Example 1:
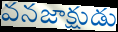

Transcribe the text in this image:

వనజాక్షుడు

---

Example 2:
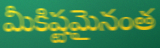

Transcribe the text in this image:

మీకిష్టమైనంత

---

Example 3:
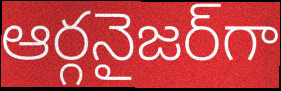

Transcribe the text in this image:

ఆర్గనైజర్‌గా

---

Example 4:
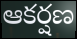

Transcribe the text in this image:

ఆకర్షణ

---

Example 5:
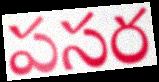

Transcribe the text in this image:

పసర